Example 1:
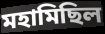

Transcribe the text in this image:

মহামিছিল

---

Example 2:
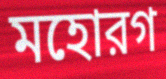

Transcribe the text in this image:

মহোরগ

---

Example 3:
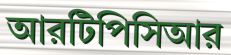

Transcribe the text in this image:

আরটিপিসিআর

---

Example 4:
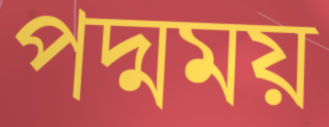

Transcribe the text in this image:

পদ্মময়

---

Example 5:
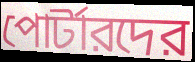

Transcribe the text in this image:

পোর্টারদের